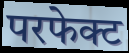
परफेक्ट